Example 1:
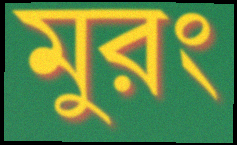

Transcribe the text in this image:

মুরং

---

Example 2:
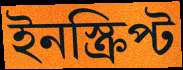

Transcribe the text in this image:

ইনস্ক্রিপ্ট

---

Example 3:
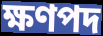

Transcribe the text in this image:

ক্ষণপদ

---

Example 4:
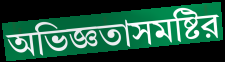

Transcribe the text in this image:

অভিজ্ঞতাসমষ্টির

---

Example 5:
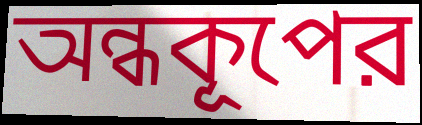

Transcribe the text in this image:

অন্ধকূপের